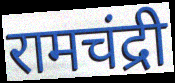
रामचंद्री